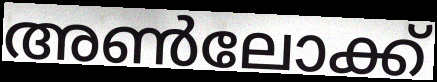
അൺലോക്ക്